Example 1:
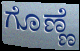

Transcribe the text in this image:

ಗೊಣ್ಣೆ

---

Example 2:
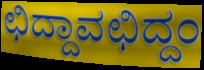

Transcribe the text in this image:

ಛಿದ್ದಾವಛಿದ್ದಂ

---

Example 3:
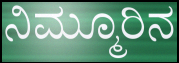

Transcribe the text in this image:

ನಿಮ್ಮೂರಿನ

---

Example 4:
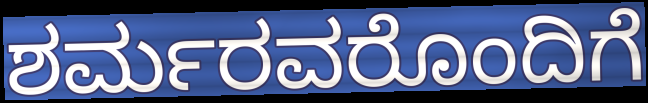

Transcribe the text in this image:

ಶರ್ಮರವರೊಂದಿಗೆ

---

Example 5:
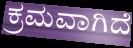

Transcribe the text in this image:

ಕ್ರಮವಾಗಿದೆ